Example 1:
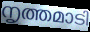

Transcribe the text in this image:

നൃത്തമാടി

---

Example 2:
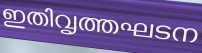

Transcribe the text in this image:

ഇതിവൃത്തഘടന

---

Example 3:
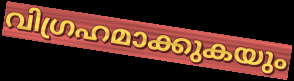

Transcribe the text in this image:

വിഗ്രഹമാക്കുകയും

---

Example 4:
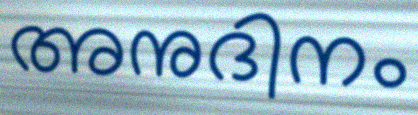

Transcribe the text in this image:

അനുദിനം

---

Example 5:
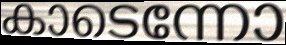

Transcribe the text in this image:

കാടെന്നോ